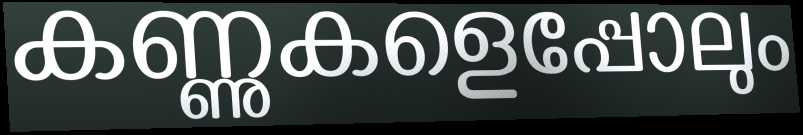
കണ്ണുകളെപ്പോലും